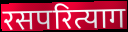
रसपरित्याग